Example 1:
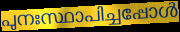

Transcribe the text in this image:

പുനഃസ്ഥാപിച്ചപ്പോൾ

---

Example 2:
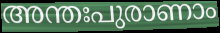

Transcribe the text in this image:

അന്തഃപുരാണാം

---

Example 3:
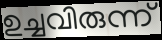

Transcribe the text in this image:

ഉച്ചവിരുന്ന്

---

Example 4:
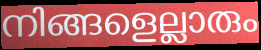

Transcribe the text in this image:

നിങ്ങളെല്ലാരും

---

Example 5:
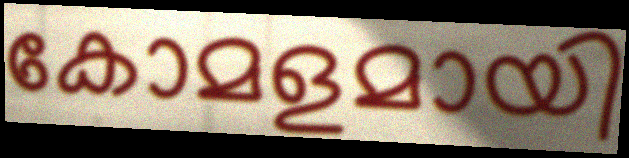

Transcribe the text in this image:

കോമളമായി